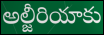
అల్జీరియాకు